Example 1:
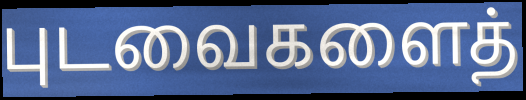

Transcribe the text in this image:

புடவைகளைத்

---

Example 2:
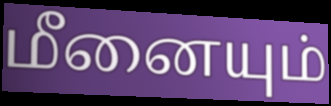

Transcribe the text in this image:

மீனையும்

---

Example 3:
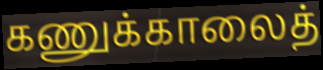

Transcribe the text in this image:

கணுக்காலைத்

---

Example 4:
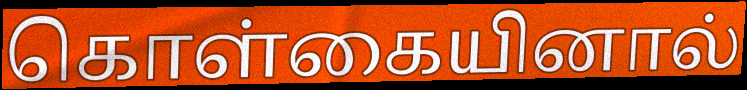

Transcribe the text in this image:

கொள்கையினால்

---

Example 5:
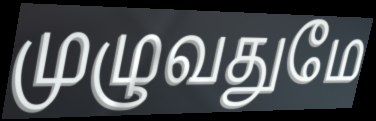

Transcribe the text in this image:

முழுவதுமே